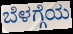
ಬೆಳಗ್ಗೆಯ